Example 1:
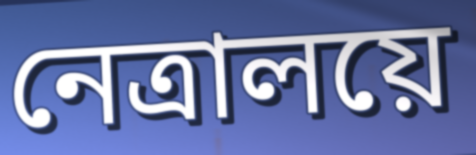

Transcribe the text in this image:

নেত্রালয়ে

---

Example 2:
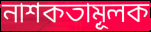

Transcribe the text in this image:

নাশকতামূলক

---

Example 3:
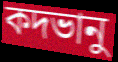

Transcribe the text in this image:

কদভানু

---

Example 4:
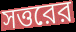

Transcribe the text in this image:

সত্তরের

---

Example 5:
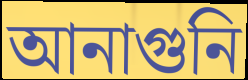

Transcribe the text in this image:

আনাগুনি